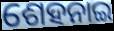
ଶେହନାଇ